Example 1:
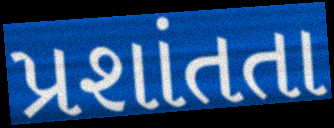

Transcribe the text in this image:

પ્રશાંતતા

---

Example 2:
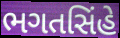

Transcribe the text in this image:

ભગતસિંહે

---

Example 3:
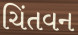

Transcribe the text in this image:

ચિંતવન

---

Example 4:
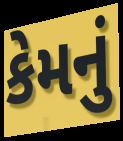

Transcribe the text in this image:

કેમનું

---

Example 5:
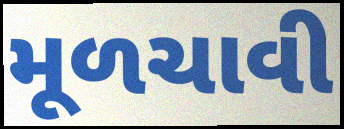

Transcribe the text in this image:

મૂળચાવી